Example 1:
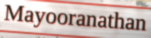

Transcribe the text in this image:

Mayooranathan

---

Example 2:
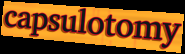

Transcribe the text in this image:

capsulotomy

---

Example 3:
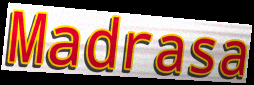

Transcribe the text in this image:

Madrasa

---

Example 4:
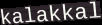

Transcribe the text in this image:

kalakkal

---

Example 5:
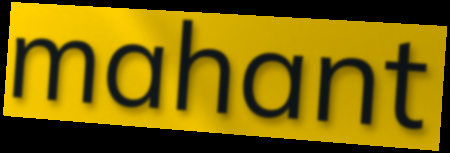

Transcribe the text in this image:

mahant